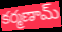
కర్మణామ్